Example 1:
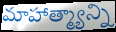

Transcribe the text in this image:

మాహాత్మ్యాన్ని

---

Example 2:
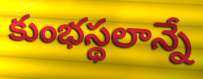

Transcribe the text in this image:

కుంభస్థలాన్నే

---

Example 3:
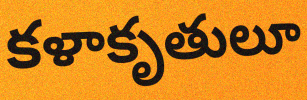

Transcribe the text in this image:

కళాకృతులూ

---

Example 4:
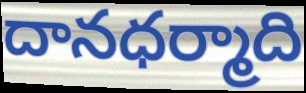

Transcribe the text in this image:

దానధర్మాది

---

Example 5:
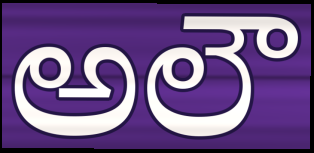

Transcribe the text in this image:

అలౌ